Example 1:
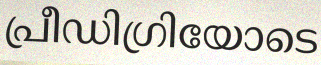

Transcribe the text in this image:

പ്രീഡിഗ്രിയോടെ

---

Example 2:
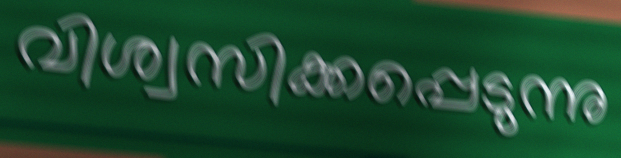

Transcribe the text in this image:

വിശ്വസിക്കപ്പെടുന്നു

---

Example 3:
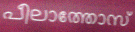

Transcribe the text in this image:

പീലാത്തോസ്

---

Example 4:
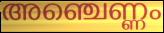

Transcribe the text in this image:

അഞ്ചെണ്ണം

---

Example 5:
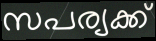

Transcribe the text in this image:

സപര്യക്ക്